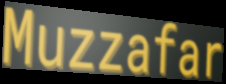
Muzzafar